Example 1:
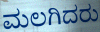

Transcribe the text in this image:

ಮಲಗಿದರು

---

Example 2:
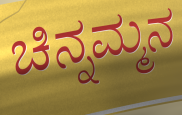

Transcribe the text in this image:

ಚಿನ್ನಮ್ಮನ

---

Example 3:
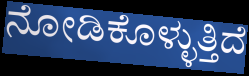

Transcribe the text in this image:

ನೋಡಿಕೊಳ್ಳುತ್ತಿದೆ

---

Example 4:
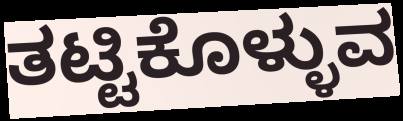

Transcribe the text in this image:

ತಟ್ಟಿಕೊಳ್ಳುವ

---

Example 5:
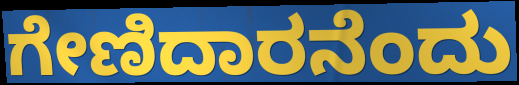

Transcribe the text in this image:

ಗೇಣಿದಾರನೆಂದು